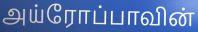
அய்ரோப்பாவின்